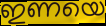
ഇണയെ